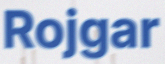
Rojgar